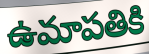
ఉమాపతికి